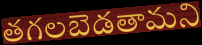
తగలబెడతామని